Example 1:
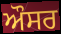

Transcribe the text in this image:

ਔਸਰ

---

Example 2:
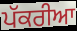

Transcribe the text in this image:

ਪੱਕਰੀਆ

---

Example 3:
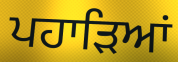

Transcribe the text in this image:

ਪਹਾੜਿਆਂ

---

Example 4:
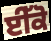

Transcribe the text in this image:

ਈੱਕੋ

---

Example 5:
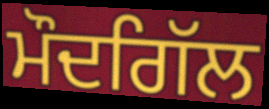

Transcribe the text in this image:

ਮੌਦਗਿੱਲ